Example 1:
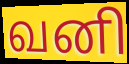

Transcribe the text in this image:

வனி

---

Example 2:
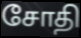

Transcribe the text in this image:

சோதி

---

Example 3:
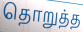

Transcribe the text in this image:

தொறுத்த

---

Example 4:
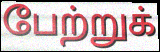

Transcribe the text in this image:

பேற்றுக்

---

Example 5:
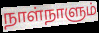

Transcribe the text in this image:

நாள்நாளும்